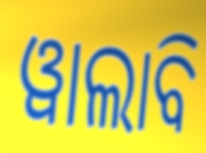
ୱାଲାବି